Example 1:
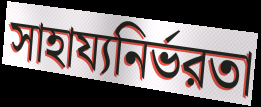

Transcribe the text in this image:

সাহায্যনির্ভরতা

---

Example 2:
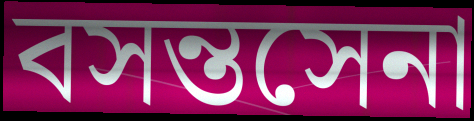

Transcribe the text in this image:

বসন্তসেনা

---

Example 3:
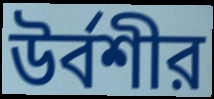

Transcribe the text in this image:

উর্বশীর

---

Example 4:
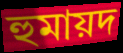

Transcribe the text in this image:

হুমায়দ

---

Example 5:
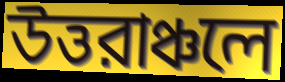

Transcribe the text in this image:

উত্তরাঞ্চলে